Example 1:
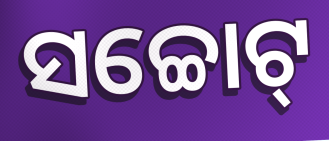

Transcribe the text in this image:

ସଚ୍ଚୋଟ୍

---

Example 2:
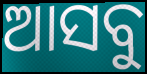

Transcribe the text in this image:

ଆସବୁ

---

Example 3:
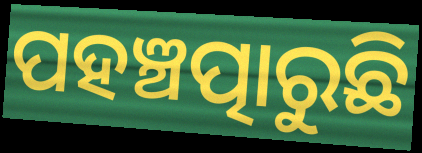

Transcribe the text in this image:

ପହଞ୍ଚତ୍ପାରୁଛି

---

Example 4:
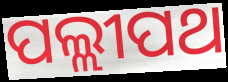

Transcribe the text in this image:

ପଲ୍ଲୀପଥ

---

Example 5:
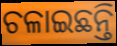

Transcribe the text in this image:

ଚଳାଇଛନ୍ତି